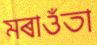
মৰাওঁতা